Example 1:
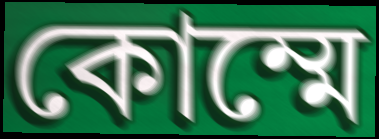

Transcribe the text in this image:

কোম্মে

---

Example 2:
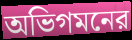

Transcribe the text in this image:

অভিগমনের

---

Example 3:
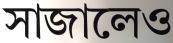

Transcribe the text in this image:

সাজালেও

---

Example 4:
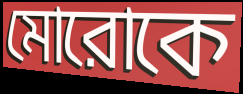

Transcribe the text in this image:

মোরোকে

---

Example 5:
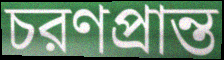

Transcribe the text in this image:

চরণপ্রান্ত